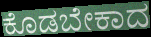
ಕೊಡಬೇಕಾದ